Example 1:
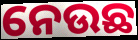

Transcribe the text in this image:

ନେଉଛ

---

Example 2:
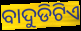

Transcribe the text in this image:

ବାଦୁଡିଟିଏ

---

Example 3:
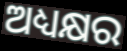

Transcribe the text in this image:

ଅଧ୍ୟକ୍ଷର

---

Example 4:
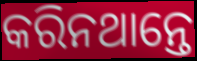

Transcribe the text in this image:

କରିନଥାନ୍ତେ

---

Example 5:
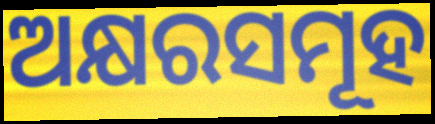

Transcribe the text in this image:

ଅକ୍ଷରସମୂହ